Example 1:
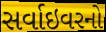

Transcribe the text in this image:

સર્વાઇવરનો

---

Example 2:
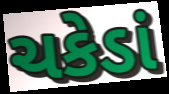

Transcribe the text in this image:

ચકેડાં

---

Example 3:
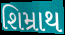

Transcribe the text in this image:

શિમ્રાથ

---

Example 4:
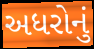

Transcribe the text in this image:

અધરોનું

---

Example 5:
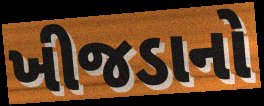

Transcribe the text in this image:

ખીજડાનો